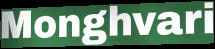
Monghvari